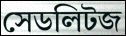
সেডলিটজ